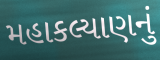
મહાકલ્યાણનું